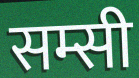
सम्सी